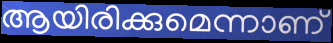
ആയിരിക്കുമെന്നാണ്